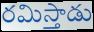
రమిస్తాడు